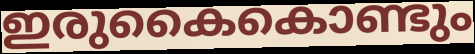
ഇരുകൈകൊണ്ടും